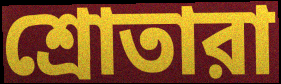
শ্রোতারা